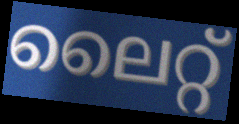
ലൈറ്റ്